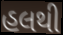
હલથી